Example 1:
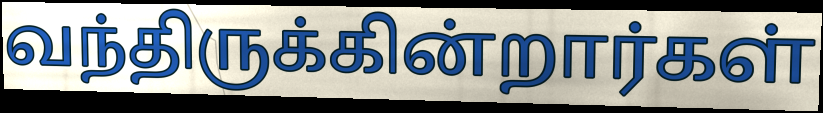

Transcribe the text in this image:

வந்திருக்கின்றார்கள்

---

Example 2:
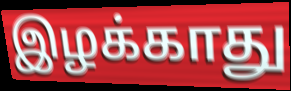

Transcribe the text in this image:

இழக்காது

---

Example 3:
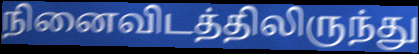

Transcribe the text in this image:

நினைவிடத்திலிருந்து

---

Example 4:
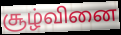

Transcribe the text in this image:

சூழ்வினை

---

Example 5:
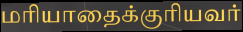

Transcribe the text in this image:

மரியாதைக்குரியவர்